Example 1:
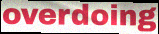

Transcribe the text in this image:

overdoing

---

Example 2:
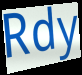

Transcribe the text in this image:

Rdy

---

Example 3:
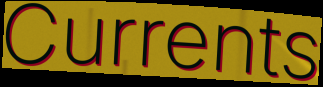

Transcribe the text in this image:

Currents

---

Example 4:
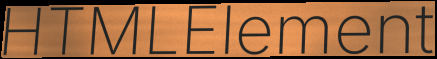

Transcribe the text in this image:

HTMLElement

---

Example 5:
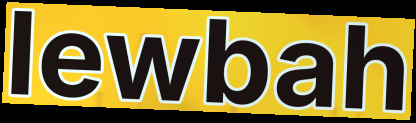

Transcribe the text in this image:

Iewbah